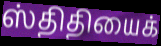
ஸ்திதியைக்